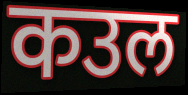
कउल